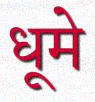
धूमे